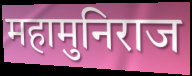
महामुनिराज